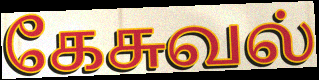
கேசுவல்